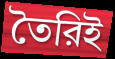
তৈরিই